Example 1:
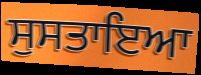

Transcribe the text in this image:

ਸੁਸਤਾਇਆ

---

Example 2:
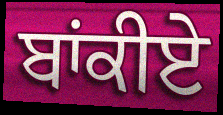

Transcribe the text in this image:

ਬਾਂਕੀਏ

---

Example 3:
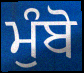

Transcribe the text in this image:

ਮੁੰਬੋ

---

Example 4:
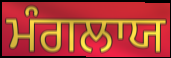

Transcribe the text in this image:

ਮੰਗਲਾਯ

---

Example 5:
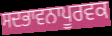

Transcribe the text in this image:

ਸਦਭਾਵਨਾਪੂਰਵਕ